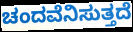
ಚಂದವೆನಿಸುತ್ತದೆ